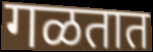
गळतात